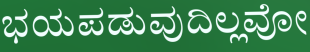
ಭಯಪಡುವುದಿಲ್ಲವೋ